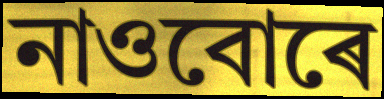
নাওবোৰে